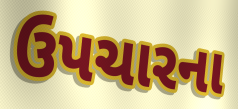
ઉપચારના